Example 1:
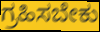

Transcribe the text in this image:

ಗ್ರಹಿಸಬೇಕು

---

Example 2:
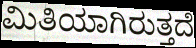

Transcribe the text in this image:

ಮಿತಿಯಾಗಿರುತ್ತದೆ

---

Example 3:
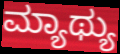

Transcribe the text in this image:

ಮ್ಯಾಥ್ಯು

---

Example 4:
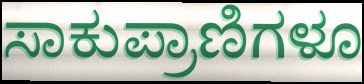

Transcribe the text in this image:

ಸಾಕುಪ್ರಾಣಿಗಳೂ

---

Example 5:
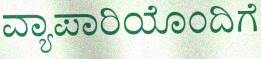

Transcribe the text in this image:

ವ್ಯಾಪಾರಿಯೊಂದಿಗೆ